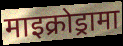
माइक्रोड्रामा